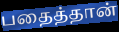
பதைத்தான்